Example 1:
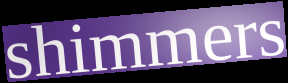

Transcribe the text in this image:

shimmers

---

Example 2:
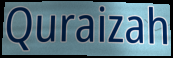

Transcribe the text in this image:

Quraizah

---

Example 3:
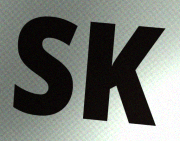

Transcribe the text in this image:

SK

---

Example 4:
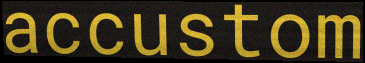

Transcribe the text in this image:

accustom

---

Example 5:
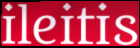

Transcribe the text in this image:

ileitis